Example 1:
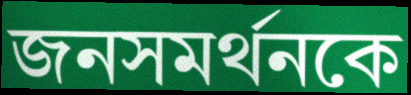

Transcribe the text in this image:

জনসমর্থনকে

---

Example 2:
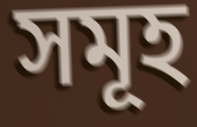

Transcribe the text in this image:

সমূহ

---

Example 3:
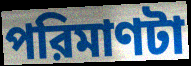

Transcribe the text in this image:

পরিমাণটা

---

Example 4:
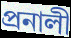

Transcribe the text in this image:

প্রনালী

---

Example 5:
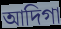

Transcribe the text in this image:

আদিগা